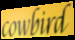
cowbird